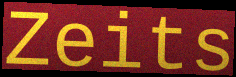
Zeits